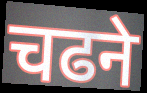
चढने